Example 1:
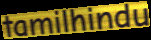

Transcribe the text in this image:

tamilhindu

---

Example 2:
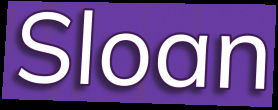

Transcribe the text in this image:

Sloan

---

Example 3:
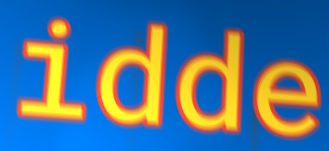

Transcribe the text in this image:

idde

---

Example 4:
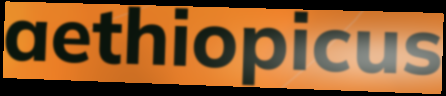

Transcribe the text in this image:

aethiopicus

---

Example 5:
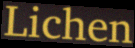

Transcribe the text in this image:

Lichen